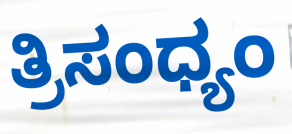
ತ್ರಿಸಂಧ್ಯಂ